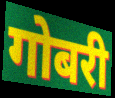
गोबरी